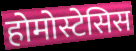
होमोस्टेसिस